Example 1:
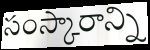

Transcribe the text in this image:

సంస్కారాన్ని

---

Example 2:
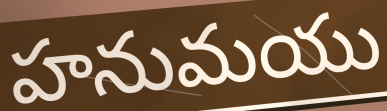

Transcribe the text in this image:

హనుమయు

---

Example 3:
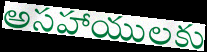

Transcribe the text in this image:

అసహాయులకు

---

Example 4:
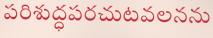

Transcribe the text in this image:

పరిశుద్ధపరచుటవలనను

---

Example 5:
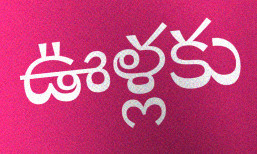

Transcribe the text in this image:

ఊళ్లకు